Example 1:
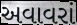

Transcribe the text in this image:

અવાવરાં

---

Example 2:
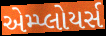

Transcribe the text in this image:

એમ્પ્લોયર્સ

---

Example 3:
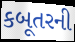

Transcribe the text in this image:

કબૂતરની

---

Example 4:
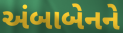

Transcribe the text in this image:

અંબાબેનને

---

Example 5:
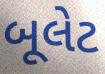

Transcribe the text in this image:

બૂલેટ